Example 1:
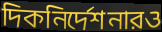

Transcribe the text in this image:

দিকনির্দেশনারও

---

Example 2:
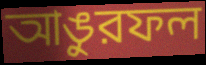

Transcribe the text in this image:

আঙুরফল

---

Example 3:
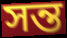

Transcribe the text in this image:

সন্ত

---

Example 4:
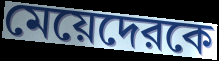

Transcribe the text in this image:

মেয়েদেরকে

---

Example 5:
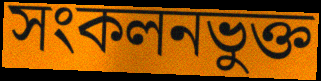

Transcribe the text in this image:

সংকলনভুক্ত